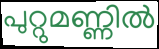
പുറ്റുമണ്ണിൽ